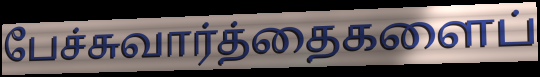
பேச்சுவார்த்தைகளைப்